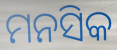
ମନସିକ